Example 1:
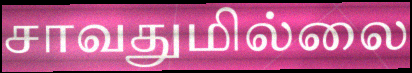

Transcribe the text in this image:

சாவதுமில்லை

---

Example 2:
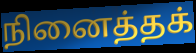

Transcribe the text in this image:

நினைத்தக்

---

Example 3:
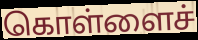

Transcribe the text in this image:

கொள்ளைச்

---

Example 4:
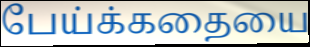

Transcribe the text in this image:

பேய்க்கதையை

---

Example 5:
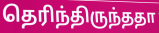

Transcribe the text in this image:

தெரிந்திருந்ததா